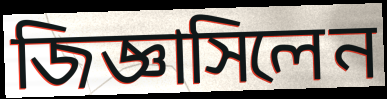
জিজ্ঞাসিলেন